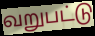
வறுபட்டு